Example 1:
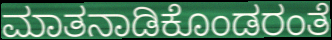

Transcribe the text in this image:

ಮಾತನಾಡಿಕೊಂಡರಂತೆ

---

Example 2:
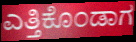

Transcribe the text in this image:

ಎತ್ತಿಕೊಂಡಾಗ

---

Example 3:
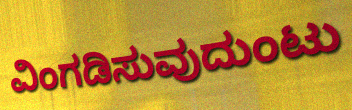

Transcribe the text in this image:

ವಿಂಗಡಿಸುವುದುಂಟು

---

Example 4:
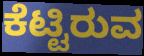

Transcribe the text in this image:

ಕೆಟ್ಟಿರುವ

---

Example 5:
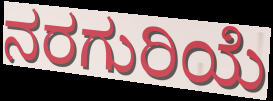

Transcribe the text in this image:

ನರಗುರಿಯೆ